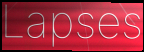
Lapses